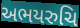
અભયરુચિ